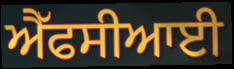
ਐੱਫਸੀਆਈ